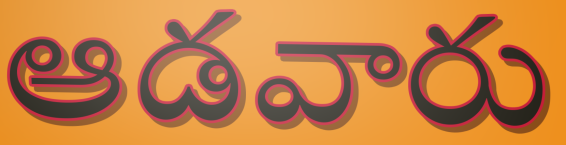
ఆడవారు